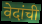
वेदांची